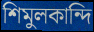
শিমুলকান্দি